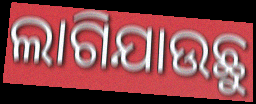
ଲାଗିଯାଉଛୁ